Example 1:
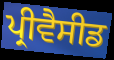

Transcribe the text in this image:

ਪ੍ਰੀਵੈਸੀਡ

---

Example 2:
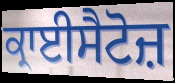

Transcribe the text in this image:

ਕ੍ਰਾਈਸੈਟੋਜ਼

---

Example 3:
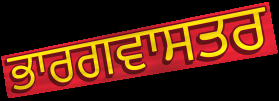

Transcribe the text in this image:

ਭਾਰਗਵਾਸਤਰ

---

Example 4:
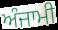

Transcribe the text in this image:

ਅੰਜਾਮੀ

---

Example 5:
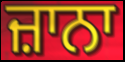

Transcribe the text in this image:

ਜ਼ਾਨਾ